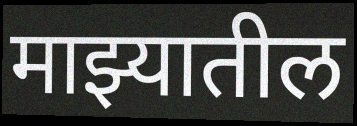
माझ्यातील